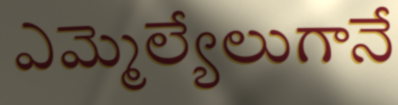
ఎమ్మెల్యేలుగానే